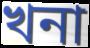
খনা